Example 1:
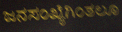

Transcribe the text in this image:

ಜನಸಂಖ್ಯೆಗಿಂತಲೂ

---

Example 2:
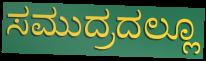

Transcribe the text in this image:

ಸಮುದ್ರದಲ್ಲೂ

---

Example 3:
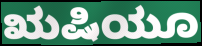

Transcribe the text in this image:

ಋಷಿಯೂ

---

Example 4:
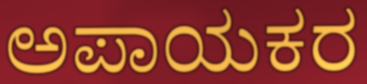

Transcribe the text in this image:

ಅಪಾಯಕರ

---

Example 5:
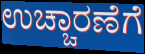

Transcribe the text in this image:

ಉಚ್ಚಾರಣೆಗೆ